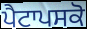
ਪੈਟਾਪਸਕੋ